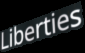
Liberties